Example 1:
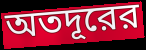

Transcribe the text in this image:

অতদূরের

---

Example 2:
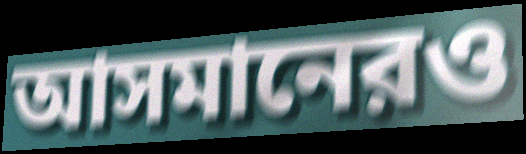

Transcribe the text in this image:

আসমানেরও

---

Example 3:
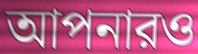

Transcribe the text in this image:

আপনারও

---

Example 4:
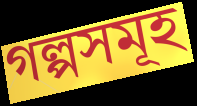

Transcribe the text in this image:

গল্পসমূহ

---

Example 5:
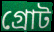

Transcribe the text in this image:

গ্রোট